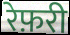
रेफ़री